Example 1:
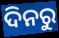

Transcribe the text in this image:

ଦିନରୁ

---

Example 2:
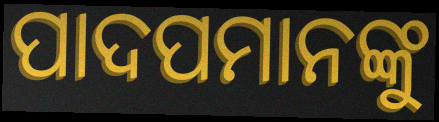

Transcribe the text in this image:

ପାଦପମାନଙ୍କୁ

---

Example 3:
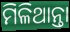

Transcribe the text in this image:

ମିଳିଥାନ୍ତା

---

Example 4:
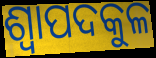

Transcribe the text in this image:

ଶ୍ୱାପଦକୁଳ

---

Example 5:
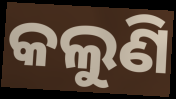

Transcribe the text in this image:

କଲୁଣି